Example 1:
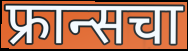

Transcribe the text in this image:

फ्रान्सचा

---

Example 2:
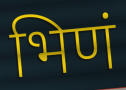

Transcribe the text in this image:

भिणं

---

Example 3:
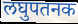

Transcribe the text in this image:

लघुपतनक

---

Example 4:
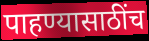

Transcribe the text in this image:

पाहण्यासाठींच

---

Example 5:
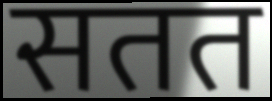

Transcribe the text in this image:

सतत